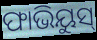
ଫାଭିୟୁସ୍